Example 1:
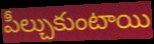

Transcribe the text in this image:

పీల్చుకుంటాయి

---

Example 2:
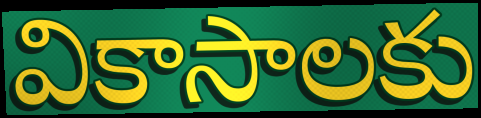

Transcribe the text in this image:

వికాసాలకు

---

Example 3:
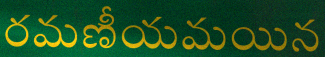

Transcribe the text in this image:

రమణీయమయిన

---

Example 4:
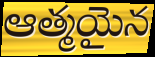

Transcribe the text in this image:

ఆత్మయైన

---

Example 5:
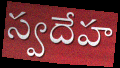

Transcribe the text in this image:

స్వదేహ